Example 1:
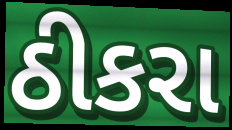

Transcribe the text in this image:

ઠીકરા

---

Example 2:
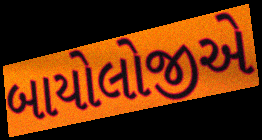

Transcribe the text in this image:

બાયોલોજીએ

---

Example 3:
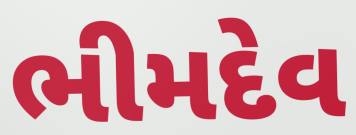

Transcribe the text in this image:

ભીમદેવ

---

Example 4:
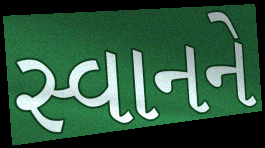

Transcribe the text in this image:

સ્વાનને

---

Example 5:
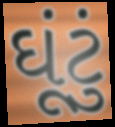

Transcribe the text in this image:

ઘૂંટું